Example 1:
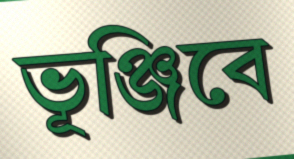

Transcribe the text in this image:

ভূঞ্জিবে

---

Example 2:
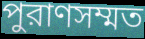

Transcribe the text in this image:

পুরাণসম্মত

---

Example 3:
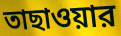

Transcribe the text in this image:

তাছাওয়ার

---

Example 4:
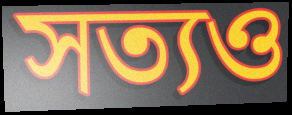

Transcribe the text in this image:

সত্যও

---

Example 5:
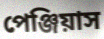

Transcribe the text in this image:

পেঞ্জিয়াস